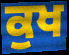
ਕੁਖ